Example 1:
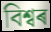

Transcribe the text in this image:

বিশ্বৰ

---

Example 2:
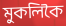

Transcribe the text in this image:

মুকলিকৈ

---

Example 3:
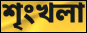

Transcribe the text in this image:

শৃংখলা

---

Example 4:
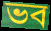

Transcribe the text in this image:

ভব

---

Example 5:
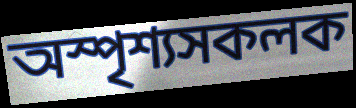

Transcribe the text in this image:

অস্পৃশ্যসকলক